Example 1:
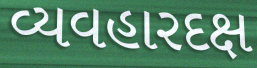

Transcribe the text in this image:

વ્યવહારદક્ષ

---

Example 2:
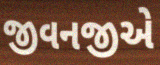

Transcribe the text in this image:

જીવનજીએ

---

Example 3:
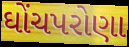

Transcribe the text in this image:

ઘોંચપરોણા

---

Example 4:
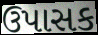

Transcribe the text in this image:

ઉપાસક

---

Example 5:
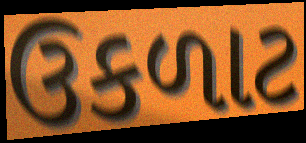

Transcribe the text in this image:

ઉકળાટ